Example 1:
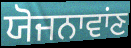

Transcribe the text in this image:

ਯੋਜਨਾਵਾਂਣ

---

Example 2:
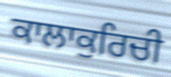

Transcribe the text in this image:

ਕਾਲਾਕੁਰਿਚੀ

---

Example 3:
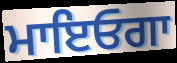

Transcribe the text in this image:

ਮਾਇਓਗਾ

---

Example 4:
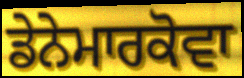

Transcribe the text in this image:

ਡੇਨੇਮਾਰਕੋਵਾ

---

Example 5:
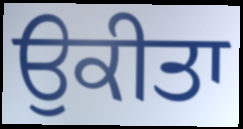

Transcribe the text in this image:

ਉਕੀਤਾ